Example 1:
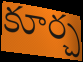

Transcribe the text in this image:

కూర్చ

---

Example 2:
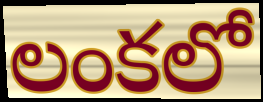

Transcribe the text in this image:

లంకలో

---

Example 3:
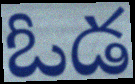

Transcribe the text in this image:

ఓడ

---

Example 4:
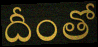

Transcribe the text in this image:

దీంతో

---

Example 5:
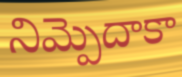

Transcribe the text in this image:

నిమ్పెదాకా